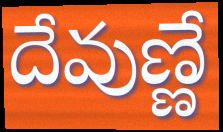
దేవుణ్ణే